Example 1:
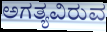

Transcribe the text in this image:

ಅಗತ್ಯವಿರುವ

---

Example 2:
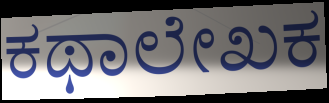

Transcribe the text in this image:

ಕಥಾಲೇಖಕ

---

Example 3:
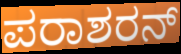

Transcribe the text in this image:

ಪರಾಶರನ್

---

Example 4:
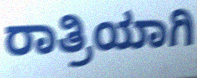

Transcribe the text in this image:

ರಾತ್ರಿಯಾಗಿ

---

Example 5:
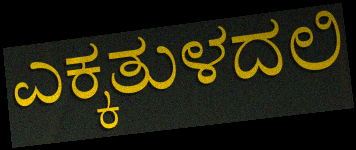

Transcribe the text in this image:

ಎಕ್ಕತುಳದಲಿ